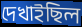
দেখাইছিল